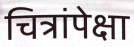
चित्रांपेक्षा